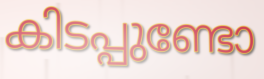
കിടപ്പുണ്ടോ